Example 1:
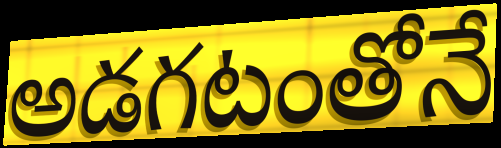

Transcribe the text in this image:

అడగటంతోనే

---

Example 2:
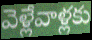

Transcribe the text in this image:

వెళ్లేవాళ్లకు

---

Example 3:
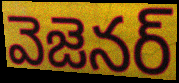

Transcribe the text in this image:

వెజెనర్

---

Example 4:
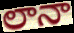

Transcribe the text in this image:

లానా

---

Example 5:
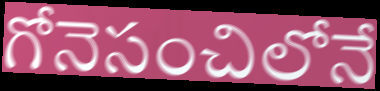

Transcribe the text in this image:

గోనెసంచిలోనే